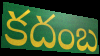
కదంబ